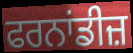
ਫਰਨਾਂਡੀਜ਼